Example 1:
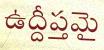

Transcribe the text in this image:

ఉద్దీప్తమై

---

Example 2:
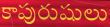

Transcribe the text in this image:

కాపురుషులు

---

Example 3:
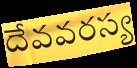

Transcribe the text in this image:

దేవవరస్య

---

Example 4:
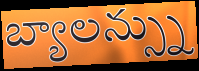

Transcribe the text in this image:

బ్యాలన్స్ను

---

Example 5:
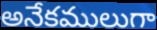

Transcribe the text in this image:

అనేకములుగా